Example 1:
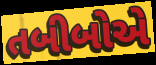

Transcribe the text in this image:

તબીબોએ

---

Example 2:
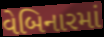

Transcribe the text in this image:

વેબિનારમાં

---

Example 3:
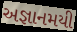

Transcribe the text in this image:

અજ્ઞાનમયી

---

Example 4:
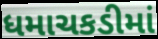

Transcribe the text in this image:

ધમાચકડીમાં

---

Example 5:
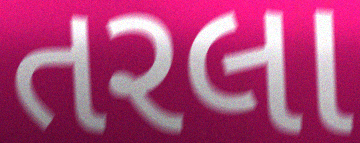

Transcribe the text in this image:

તરલા